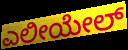
ಎಲೀಯೇಲ್